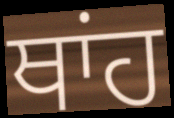
ਥਾਂਹ